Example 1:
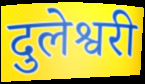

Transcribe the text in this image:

दुलेश्वरी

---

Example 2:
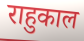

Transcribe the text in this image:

राहुकाल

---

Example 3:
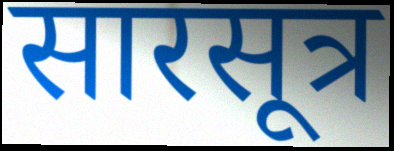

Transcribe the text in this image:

सारसूत्र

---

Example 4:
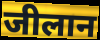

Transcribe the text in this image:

जीलान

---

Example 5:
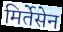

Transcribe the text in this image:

मिर्तेसेन